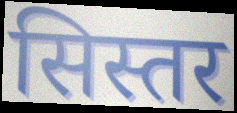
सिस्तर